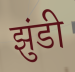
झुंडी